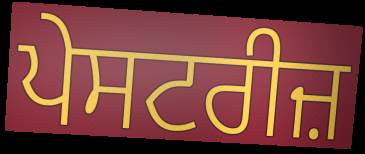
ਪੇਸਟਰੀਜ਼